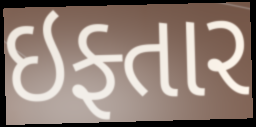
ઇફ્તાર